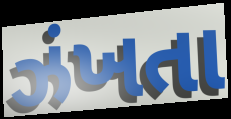
ઝંખતા